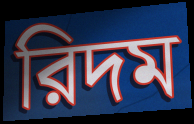
রিদম